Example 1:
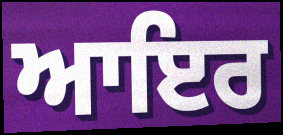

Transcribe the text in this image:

ਆਇਰ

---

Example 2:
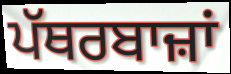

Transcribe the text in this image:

ਪੱਥਰਬਾਜ਼ਾਂ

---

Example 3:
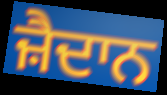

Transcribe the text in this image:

ਜ਼ੈਦਾਨ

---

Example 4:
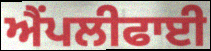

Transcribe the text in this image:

ਐਂਪਲੀਫਾਈ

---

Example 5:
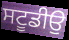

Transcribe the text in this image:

ਸਟੂਡੀਉ